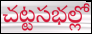
చట్టసభల్లో